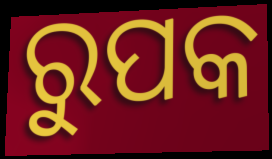
ରୁପକ